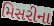
મિસરીના